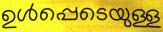
ഉൾപ്പെടെയുള്ള